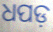
ଧପଡ଼